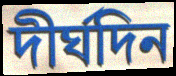
দীর্ঘদিন